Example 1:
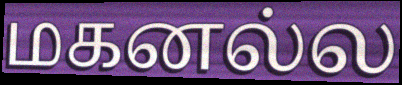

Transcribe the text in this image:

மகனல்ல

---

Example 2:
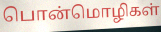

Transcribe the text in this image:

பொன்மொழிகள்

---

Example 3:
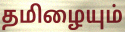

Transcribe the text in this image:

தமிழையும்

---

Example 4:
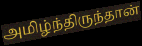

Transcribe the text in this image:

அமிழ்ந்திருந்தான்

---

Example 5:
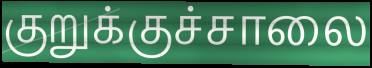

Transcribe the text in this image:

குறுக்குச்சாலை